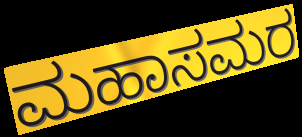
ಮಹಾಸಮರ